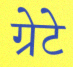
ग्रेटे